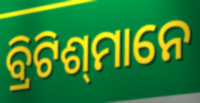
ବ୍ରିଟିଶ୍‌ମାନେ